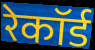
रेकॉर्ड